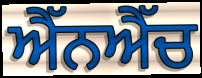
ਐੱਨਐੱਚ